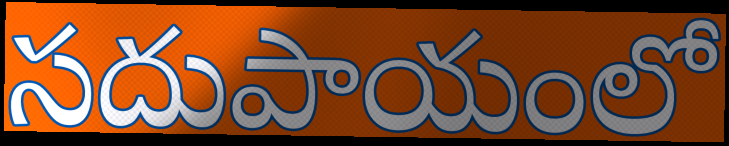
సదుపాయంలో